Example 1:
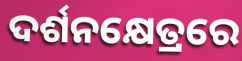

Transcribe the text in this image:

ଦର୍ଶନକ୍ଷେତ୍ରରେ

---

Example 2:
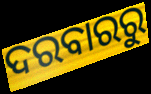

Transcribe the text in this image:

ଦରବାରରୁ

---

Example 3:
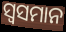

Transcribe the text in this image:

ସ୍ୱସମାନ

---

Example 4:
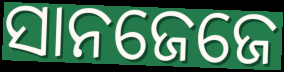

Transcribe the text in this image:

ସାନଜେଜେ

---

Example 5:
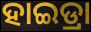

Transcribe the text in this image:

ହାଇଡ୍ରା